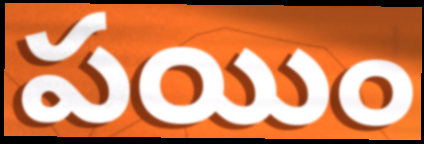
పయిం